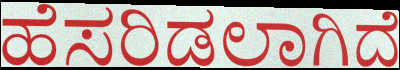
ಹೆಸರಿಡಲಾಗಿದೆ